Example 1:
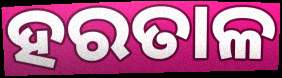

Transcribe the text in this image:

ହରତାଳ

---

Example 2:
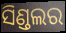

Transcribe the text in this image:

ସିଣ୍ଡଲର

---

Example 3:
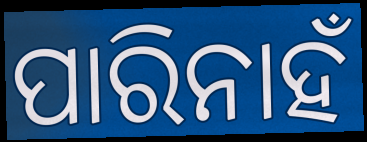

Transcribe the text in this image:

ପାରିନାହଁ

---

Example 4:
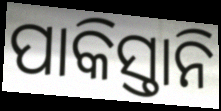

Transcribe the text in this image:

ପାକିସ୍ତାନି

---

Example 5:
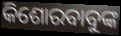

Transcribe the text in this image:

କିଶୋରବାବୁଙ୍କ